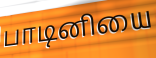
பாடினியை